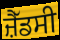
ਜ਼ੈੱਡਸੀ